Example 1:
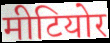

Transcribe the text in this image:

मीटियोर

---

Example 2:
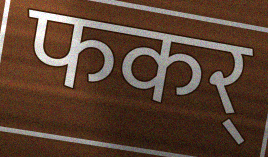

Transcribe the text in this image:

फकर्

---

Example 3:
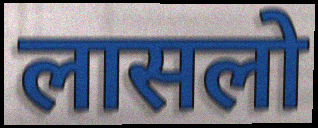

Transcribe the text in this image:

लासलो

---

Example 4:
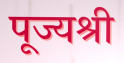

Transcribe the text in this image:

पूज्यश्री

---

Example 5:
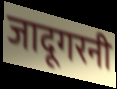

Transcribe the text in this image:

जादूगरनी